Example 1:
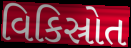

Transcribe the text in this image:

વિકિસ્રોત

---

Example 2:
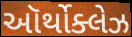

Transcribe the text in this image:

ઑર્થોક્લેઝ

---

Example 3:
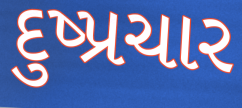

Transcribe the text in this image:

દુષ્પ્રચાર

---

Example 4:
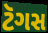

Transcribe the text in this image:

ટૅગસ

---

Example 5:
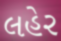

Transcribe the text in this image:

લહેર